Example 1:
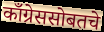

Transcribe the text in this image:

काँग्रेससोबतचे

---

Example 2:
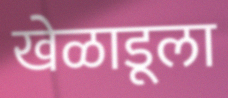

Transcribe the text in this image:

खेळाडूला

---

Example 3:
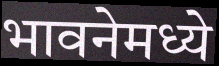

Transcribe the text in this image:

भावनेमध्ये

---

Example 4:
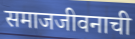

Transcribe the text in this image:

समाजजीवनाची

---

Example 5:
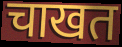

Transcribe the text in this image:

चाखत